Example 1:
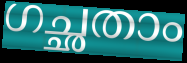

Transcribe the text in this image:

ഗച്ഛതാം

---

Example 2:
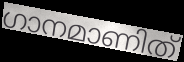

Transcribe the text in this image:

ഗാനമാണിത്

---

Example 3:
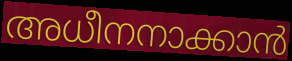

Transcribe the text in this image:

അധീനനാക്കാൻ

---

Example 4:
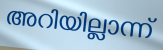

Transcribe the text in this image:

അറിയില്ലാന്ന്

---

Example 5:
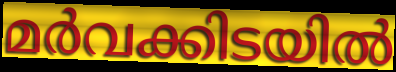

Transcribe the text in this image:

മർവക്കിടയിൽ